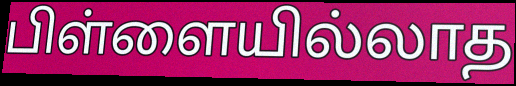
பிள்ளையில்லாத